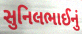
સુનિલભાઈનું